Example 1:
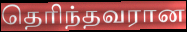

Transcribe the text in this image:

தெரிந்தவரான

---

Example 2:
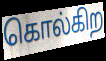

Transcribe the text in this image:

கொல்கிற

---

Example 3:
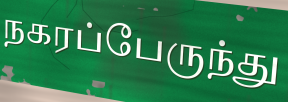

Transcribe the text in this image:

நகரப்பேருந்து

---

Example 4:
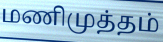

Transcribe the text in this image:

மணிமுத்தம்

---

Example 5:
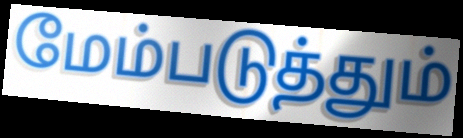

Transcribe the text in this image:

மேம்படுத்தும்